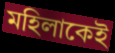
মহিলাকেই